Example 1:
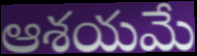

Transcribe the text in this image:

ఆశయమే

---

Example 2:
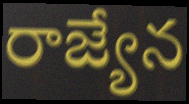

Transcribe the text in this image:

రాజ్యేన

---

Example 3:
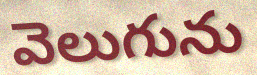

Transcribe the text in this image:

వెలుగును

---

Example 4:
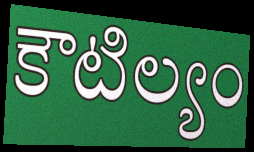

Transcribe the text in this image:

కౌటిల్యం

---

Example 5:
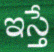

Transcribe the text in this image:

ఇస్తే